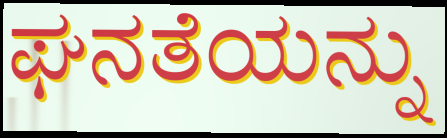
ಘನತೆಯನ್ನು